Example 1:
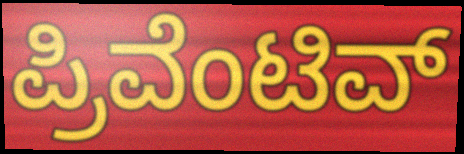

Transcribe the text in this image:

ಪ್ರಿವೆಂಟಿವ್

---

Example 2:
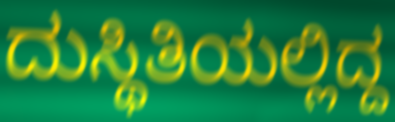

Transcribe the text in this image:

ದುಸ್ಥಿತಿಯಲ್ಲಿದ್ದ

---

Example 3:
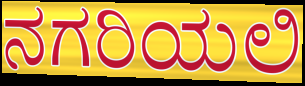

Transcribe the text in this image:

ನಗರಿಯಲಿ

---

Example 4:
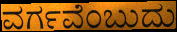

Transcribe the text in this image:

ವರ್ಗವೆಂಬುದು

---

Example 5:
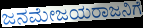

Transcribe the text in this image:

ಜನಮೇಜಯರಾಜನಿಗೆ